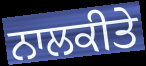
ਨਾਲਕੀਤੇ